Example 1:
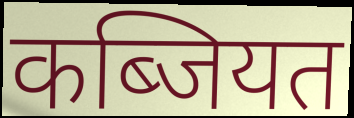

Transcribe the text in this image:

कब्जियत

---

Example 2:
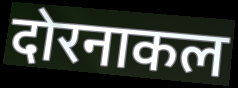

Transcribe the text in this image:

दोरनाकल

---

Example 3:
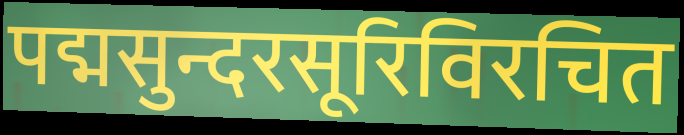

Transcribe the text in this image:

पद्मसुन्दरसूरिविरचित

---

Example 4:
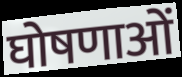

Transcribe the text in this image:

घोषणाओं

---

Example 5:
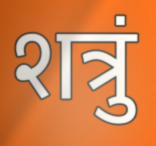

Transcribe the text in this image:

शत्रुं